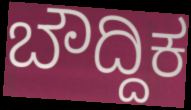
ಬೌದ್ದಿಕ